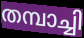
തമ്പാച്ചി